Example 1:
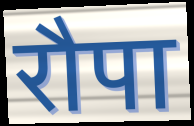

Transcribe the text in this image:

रौपा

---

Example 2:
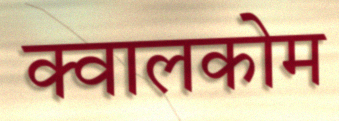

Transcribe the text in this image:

क्वालकोम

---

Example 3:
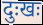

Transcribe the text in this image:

दुःखः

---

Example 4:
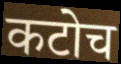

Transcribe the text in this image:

कटोच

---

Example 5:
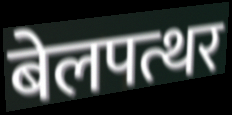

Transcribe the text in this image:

बेलपत्थर